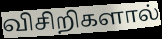
விசிறிகளால்